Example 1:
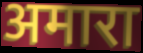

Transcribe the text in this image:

अमारा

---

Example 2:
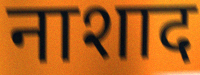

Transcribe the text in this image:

नाशाद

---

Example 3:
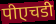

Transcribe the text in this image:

पीएचडी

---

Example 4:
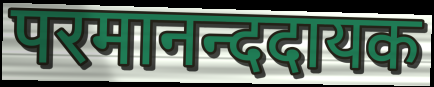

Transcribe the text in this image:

परमानन्ददायक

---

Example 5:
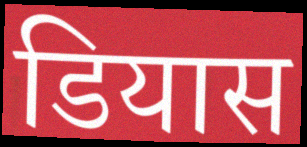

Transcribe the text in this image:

डियास